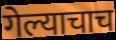
गेल्याचाच